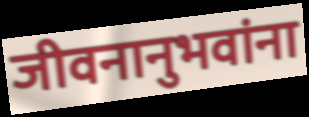
जीवनानुभवांना